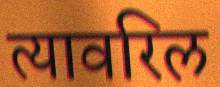
त्यावरिल